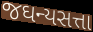
જઘન્યસત્તા